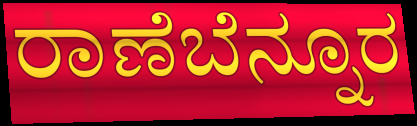
ರಾಣೆಬೆನ್ನೂರ